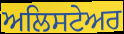
ਅਲਿਸਟੇਅਰ